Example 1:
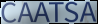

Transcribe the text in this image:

CAATSA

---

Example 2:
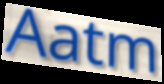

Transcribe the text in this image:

Aatm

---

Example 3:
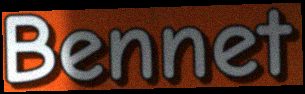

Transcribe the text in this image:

Bennet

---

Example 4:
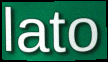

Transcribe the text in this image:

lato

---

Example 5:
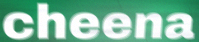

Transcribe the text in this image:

cheena